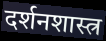
दर्शनशास्त्र